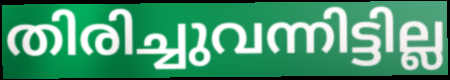
തിരിച്ചുവന്നിട്ടില്ല